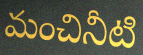
మంచినీటి